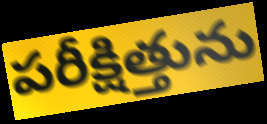
పరీక్షిత్తును